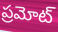
ప్రమోట్